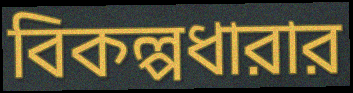
বিকল্পধারার